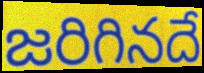
జరిగినదే